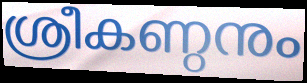
ശ്രീകണ്ഠനും